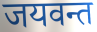
जयवन्त